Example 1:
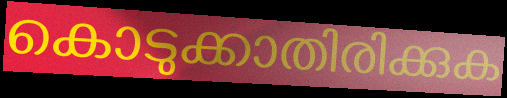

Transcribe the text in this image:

കൊടുക്കാതിരിക്കുക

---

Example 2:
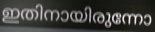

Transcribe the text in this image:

ഇതിനായിരുന്നോ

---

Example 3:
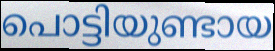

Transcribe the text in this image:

പൊട്ടിയുണ്ടായ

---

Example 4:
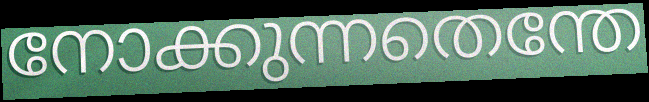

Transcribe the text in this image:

നോക്കുന്നതെന്തേ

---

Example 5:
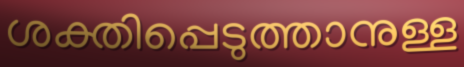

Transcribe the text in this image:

ശക്തിപ്പെടുത്താനുള്ള